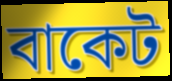
বাকেট